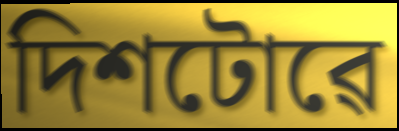
দিশটোৱে